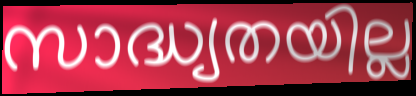
സാദ്ധ്യതയില്ല